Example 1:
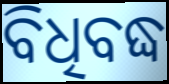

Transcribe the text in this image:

ବିଧିବଦ୍ଧ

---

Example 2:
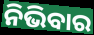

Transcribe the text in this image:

ନିଭିବାର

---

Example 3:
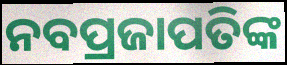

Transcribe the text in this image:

ନବପ୍ରଜାପତିଙ୍କ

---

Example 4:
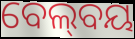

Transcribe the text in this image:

ବେଲ୍‍ବୟ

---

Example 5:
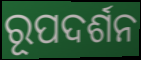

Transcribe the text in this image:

ରୂପଦର୍ଶନ